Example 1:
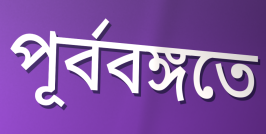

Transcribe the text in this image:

পূর্ববঙ্গতে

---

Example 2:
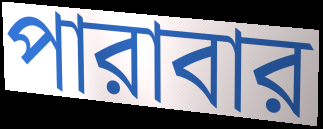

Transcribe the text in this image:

পারাবার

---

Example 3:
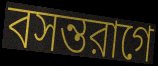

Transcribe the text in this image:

বসন্তরাগে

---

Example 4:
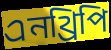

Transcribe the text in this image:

এনথ্রিপি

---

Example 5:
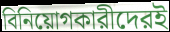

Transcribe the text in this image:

বিনিয়োগকারীদেরই